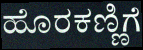
ಹೊರಕಣ್ಣಿಗೆ